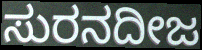
ಸುರನದೀಜ